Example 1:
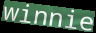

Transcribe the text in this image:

winnie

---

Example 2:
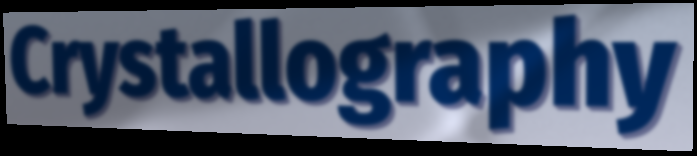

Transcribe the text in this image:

Crystallography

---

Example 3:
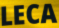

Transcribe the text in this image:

LECA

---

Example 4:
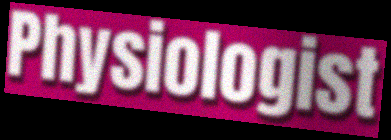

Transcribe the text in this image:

Physiologist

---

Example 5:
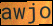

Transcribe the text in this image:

awjo